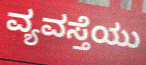
ವ್ಯವಸ್ತೆಯು